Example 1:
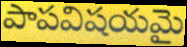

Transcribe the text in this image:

పాపవిషయమై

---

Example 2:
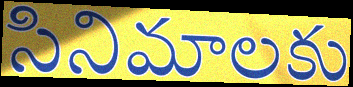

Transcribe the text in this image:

సినిమాలకు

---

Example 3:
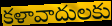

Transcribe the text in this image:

కళావాదులకు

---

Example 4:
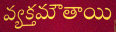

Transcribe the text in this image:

వ్యక్తమౌతాయి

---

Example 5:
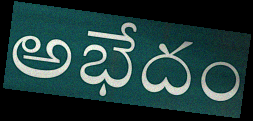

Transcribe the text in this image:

అభేదం